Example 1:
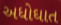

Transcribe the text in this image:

અધોઘાત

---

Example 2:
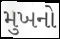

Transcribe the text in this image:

મુખનો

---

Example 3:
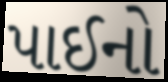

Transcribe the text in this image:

પાઈનો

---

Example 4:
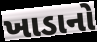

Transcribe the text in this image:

ખાડાનો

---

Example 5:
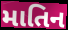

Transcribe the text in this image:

માતિન